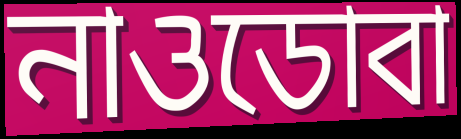
নাওডোবা